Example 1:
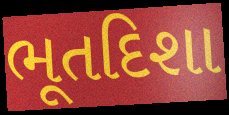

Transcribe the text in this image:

ભૂતદિશા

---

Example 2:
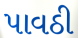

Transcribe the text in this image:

પાવઠી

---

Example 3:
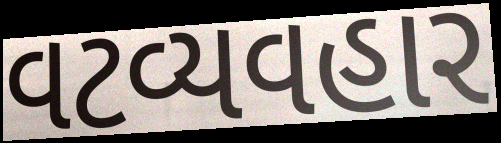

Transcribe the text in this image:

વટવ્યવહાર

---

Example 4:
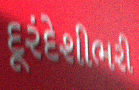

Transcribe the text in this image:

દૂરંદેશીભરી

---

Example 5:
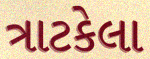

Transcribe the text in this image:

ત્રાટકેલા